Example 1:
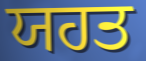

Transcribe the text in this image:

ਯਹਤ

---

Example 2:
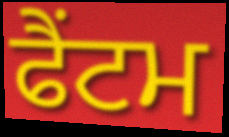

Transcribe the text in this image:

ਫੈਂਟਮ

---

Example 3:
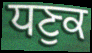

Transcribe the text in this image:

ਧਣੁਕ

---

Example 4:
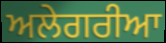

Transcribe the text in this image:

ਅਲੇਗਰੀਆ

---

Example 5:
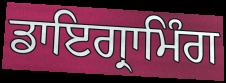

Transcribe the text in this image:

ਡਾਇਗ੍ਰਾਮਿੰਗ